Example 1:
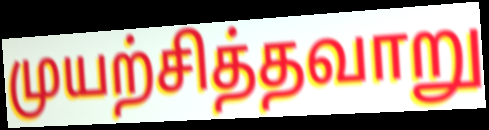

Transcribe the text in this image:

முயற்சித்தவாறு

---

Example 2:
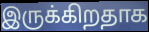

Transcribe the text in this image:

இருக்கிறதாக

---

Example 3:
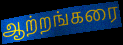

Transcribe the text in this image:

ஆற்றங்கரை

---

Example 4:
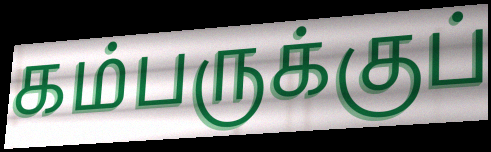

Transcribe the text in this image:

கம்பருக்குப்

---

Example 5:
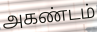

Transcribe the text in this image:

அகண்டம்